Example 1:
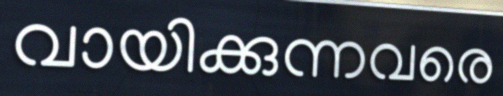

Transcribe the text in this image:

വായിക്കുന്നവരെ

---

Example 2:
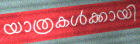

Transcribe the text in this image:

യാത്രകൾക്കായി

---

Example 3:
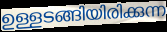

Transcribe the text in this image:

ഉള്ളടങ്ങിയിരിക്കുന്ന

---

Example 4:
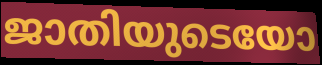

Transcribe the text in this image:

ജാതിയുടെയോ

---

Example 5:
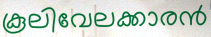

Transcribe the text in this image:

കൂലിവേലക്കാരൻ